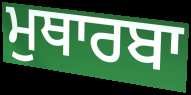
ਮੁਥਾਰਬਾ